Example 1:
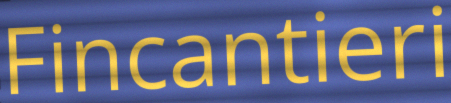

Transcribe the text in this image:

Fincantieri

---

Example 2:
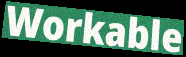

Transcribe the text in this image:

Workable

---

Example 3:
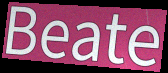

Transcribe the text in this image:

Beate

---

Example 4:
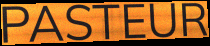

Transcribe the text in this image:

PASTEUR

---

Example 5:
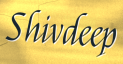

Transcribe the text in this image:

Shivdeep